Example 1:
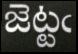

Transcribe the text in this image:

జెట్టఁ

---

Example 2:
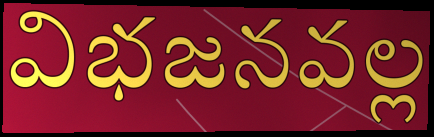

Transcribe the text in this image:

విభజనవల్ల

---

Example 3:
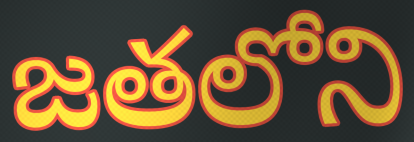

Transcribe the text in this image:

జతలోని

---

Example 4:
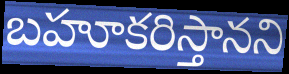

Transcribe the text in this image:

బహూకరిస్తానని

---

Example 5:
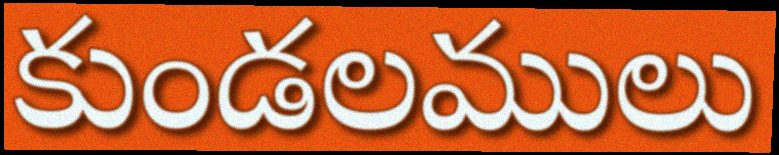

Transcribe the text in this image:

కుండలములు